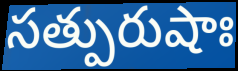
సత్పురుషాః